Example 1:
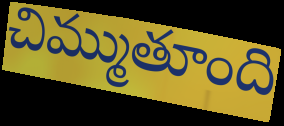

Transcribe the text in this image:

చిమ్ముతూంది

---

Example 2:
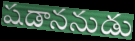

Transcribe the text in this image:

షడాననుడు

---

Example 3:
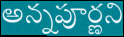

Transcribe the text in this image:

అన్నపూర్ణని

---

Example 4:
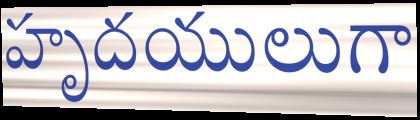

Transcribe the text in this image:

హృదయులుగా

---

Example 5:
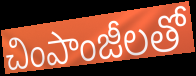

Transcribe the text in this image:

చింపాంజీలతో